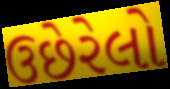
ઉછેરેલો